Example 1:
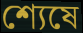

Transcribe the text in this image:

শ্যেষে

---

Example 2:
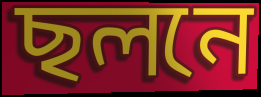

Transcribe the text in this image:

ছলনে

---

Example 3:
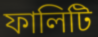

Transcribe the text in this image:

ফালিটি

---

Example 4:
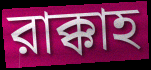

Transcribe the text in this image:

রাক্কাহ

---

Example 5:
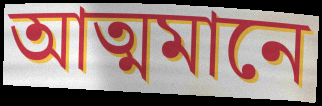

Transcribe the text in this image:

আত্মমানে